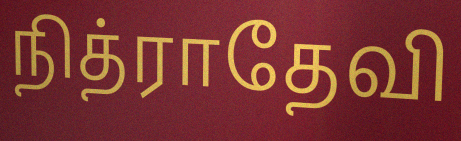
நித்ராதேவி